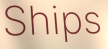
Ships